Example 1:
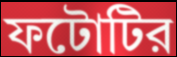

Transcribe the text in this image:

ফটোটির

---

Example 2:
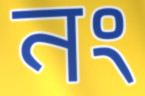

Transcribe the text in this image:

নং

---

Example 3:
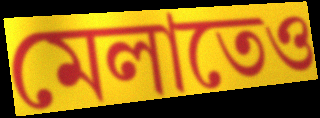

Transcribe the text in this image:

মেলাতেও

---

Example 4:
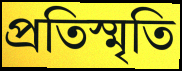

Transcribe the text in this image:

প্রতিস্মৃতি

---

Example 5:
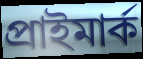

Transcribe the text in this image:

প্রাইমার্ক